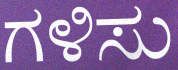
ಗಳಿಸು